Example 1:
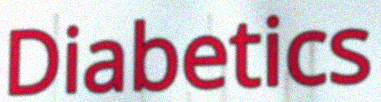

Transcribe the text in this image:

Diabetics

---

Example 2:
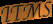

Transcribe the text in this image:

ITMS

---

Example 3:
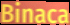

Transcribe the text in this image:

Binaca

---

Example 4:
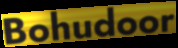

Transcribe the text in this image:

Bohudoor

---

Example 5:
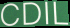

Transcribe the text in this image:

CDIL